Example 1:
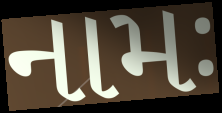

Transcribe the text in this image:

નામઃ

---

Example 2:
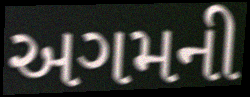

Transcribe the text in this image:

અગમની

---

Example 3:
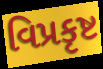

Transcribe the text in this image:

વિપ્રકૃષ્ટ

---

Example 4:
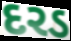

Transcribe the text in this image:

દરડ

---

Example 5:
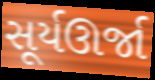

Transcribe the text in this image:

સૂર્યઊર્જા